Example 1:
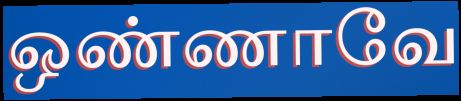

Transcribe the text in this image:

ஒண்ணாவே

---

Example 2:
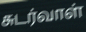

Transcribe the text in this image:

சுடர்வாள்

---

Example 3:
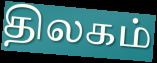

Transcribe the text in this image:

திலகம்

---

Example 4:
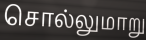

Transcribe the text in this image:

சொல்லுமாறு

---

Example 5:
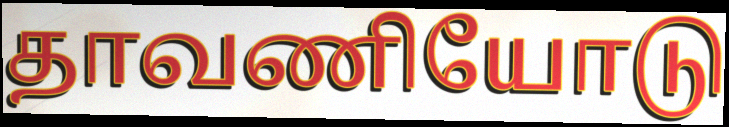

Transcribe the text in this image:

தாவணியோடு